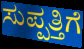
ಸುಪ್ಪತ್ತಿಗೆ